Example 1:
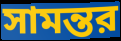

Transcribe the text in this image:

সামন্তর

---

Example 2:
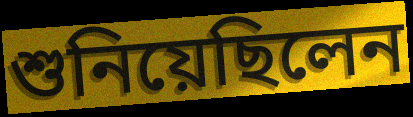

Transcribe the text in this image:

শুনিয়েছিলেন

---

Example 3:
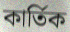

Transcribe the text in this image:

কার্তিক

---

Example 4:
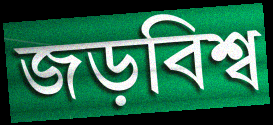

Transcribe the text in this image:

জড়বিশ্ব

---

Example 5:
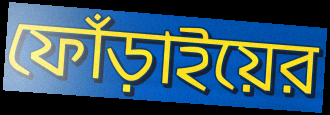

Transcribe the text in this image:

ফোঁড়াইয়ের